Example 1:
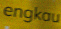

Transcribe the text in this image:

engkau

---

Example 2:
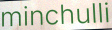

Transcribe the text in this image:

minchulli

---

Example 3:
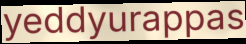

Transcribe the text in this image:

yeddyurappas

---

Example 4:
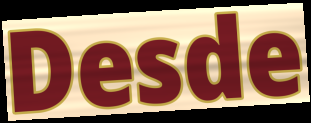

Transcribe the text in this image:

Desde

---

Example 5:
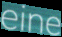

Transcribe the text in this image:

eine